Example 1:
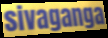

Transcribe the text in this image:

sivaganga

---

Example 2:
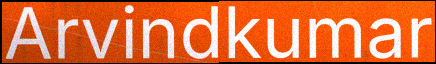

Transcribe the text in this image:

Arvindkumar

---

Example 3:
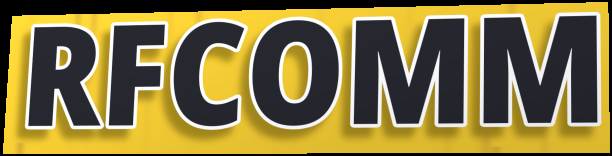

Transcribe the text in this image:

RFCOMM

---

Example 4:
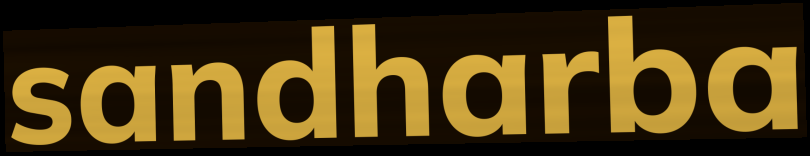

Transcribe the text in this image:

sandharba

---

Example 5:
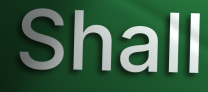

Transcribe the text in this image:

Shall